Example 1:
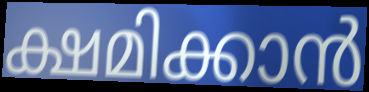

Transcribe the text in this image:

ക്ഷമിക്കാൻ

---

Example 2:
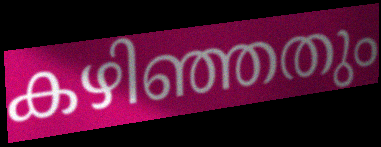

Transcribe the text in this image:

കഴിഞ്ഞതും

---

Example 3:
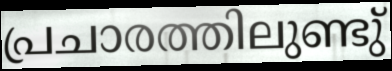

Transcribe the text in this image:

പ്രചാരത്തിലുണ്ടു്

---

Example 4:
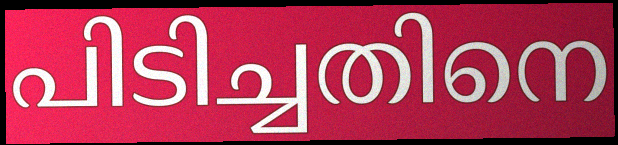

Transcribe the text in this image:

പിടിച്ചതിനെ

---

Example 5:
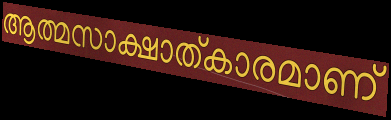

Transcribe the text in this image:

ആത്മസാക്ഷാത്കാരമാണ്